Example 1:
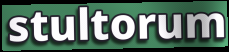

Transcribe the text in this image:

stultorum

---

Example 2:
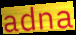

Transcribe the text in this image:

adna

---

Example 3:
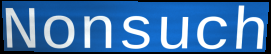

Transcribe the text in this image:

Nonsuch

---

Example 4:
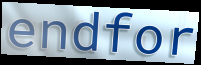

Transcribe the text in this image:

endfor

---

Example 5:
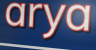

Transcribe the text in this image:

arya